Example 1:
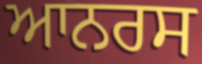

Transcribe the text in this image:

ਆਨਰਸ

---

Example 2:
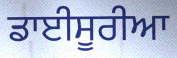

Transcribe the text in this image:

ਡਾਈਸੂਰੀਆ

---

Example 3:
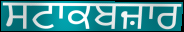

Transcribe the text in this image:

ਸਟਾਕਬਜ਼ਾਰ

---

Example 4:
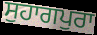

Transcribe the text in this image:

ਸੁਹਾਗਪੁਰਾ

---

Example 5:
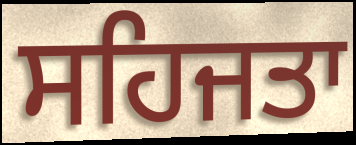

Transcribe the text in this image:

ਸਹਿਜਤਾ